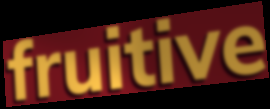
fruitive